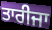
ਤਾਰੀਜਾ